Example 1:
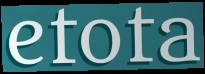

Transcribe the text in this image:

etota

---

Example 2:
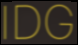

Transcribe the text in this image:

IDG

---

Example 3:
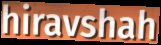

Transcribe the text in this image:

hiravshah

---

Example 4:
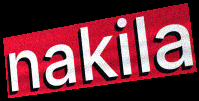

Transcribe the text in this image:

nakila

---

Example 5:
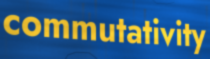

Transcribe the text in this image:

commutativity